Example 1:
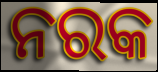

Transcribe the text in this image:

ନରକ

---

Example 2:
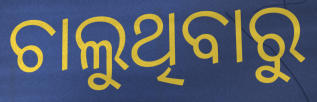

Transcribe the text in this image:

ଚାଲୁଥିବାରୁ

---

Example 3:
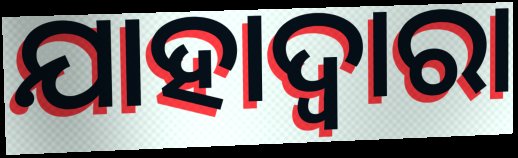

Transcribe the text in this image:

ଯାହାଦ୍ୱାରା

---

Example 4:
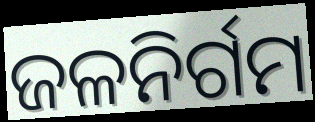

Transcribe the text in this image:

ଜଳନିର୍ଗମ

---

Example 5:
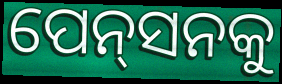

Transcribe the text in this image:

ପେନ୍‌ସନକୁ